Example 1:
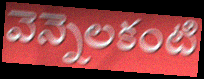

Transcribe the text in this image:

వెన్నెలకంటి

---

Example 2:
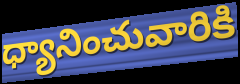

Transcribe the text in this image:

ధ్యానించువారికి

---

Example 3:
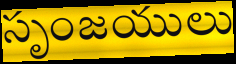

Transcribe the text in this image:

సృంజయులు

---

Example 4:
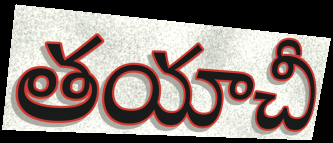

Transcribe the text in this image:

తయాచీ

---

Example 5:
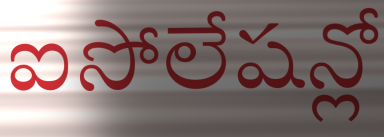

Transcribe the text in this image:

ఐసోలేషన్లో